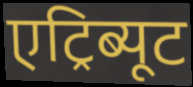
एट्रिब्यूट